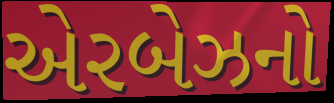
એરબેઝનો